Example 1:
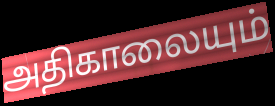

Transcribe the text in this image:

அதிகாலையும்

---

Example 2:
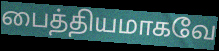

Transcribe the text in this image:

பைத்தியமாகவே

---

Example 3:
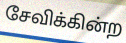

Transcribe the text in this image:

சேவிக்கின்ற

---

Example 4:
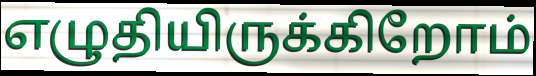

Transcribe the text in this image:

எழுதியிருக்கிறோம்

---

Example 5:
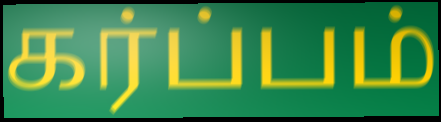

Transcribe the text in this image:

கர்ப்பம்